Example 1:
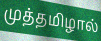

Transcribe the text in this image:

முத்தமிழால்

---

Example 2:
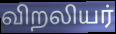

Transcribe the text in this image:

விறலியர்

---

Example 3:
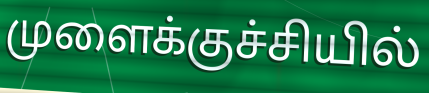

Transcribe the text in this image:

முளைக்குச்சியில்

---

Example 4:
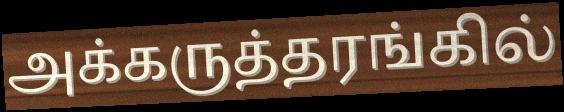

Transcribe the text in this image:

அக்கருத்தரங்கில்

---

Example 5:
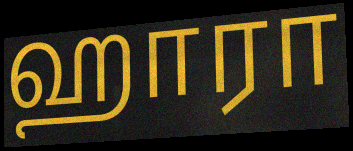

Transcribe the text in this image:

ஹாரா